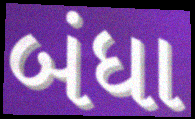
બંધા